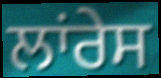
ਲਾਂਰੇਸ